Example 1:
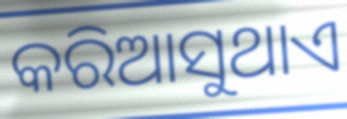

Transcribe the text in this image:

କରିଆସୁଥାଏ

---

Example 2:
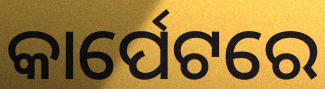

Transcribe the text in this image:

କାର୍ପେଟରେ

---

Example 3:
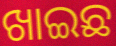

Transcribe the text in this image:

ଖାଇଛ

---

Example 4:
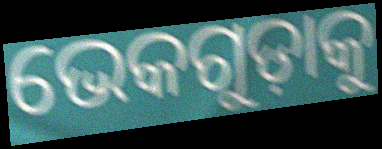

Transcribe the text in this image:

ଭେକଗୁଡ଼ାକୁ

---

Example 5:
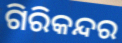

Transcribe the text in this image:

ଗିରିକନ୍ଦର